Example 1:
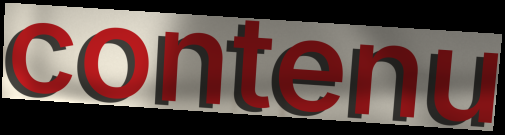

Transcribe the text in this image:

contenu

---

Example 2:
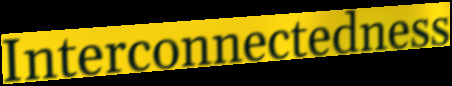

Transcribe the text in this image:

Interconnectedness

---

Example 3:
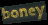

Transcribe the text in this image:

boney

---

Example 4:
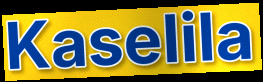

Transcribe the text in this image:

Kaselila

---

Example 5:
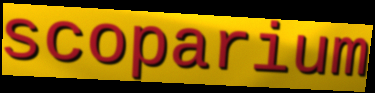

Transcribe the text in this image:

scoparium